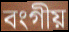
বংগীয়